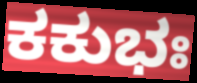
ಕಕುಭಃ